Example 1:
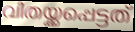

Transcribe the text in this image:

വിതയ്ക്കപ്പെട്ടത്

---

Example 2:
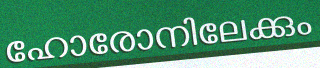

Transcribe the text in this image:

ഹോരോനിലേക്കും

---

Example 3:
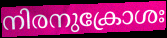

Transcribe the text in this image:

നിരനുക്രോശഃ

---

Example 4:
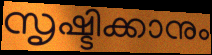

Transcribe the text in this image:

സൃഷ്ടിക്കാനും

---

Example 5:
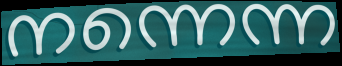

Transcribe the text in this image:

നന്നെന്ന